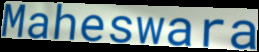
Maheswara